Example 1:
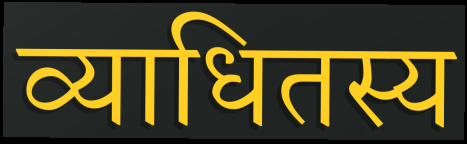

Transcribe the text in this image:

व्याधितस्य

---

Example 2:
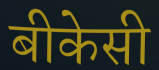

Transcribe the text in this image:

बीकेसी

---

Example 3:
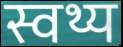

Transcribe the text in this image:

स्वथ्य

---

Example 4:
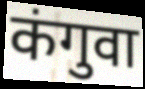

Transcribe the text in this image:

कंगुवा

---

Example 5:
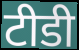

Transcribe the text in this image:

टीडी